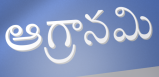
ఆగ్రానమి